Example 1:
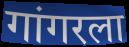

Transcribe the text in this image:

गांगरला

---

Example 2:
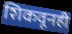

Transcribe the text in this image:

शिकवूनही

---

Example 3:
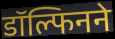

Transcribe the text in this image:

डॉल्फिनने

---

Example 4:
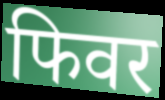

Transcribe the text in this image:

फिवर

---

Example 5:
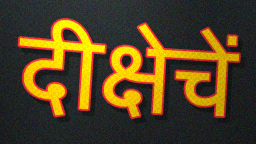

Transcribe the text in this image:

दीक्षेचें